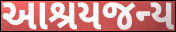
આશ્રયજન્ય